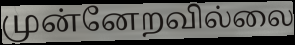
முன்னேறவில்லை